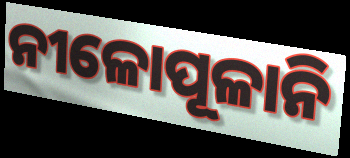
ନୀଳୋପୂଳାନି